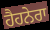
ਹੈਹਨੇਰਾ